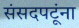
संसदपटूंना